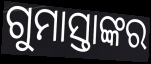
ଗୁମାସ୍ତାଙ୍କର